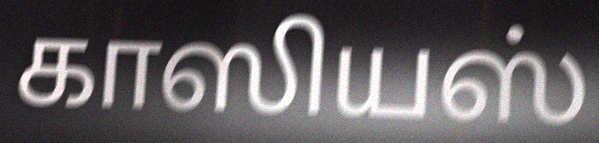
காஸியஸ்